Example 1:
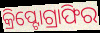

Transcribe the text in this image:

କ୍ରିପ୍ଟୋଗ୍ରାଫିର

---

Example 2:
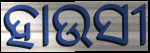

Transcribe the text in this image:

ହାଉସୀ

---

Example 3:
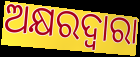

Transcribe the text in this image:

ଅକ୍ଷରଦ୍ଵାରା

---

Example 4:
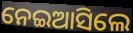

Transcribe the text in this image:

ନେଇଆସିଲେ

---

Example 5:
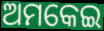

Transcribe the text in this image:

ଅମକେଇ